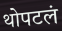
थोपटलं